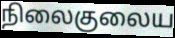
நிலைகுலைய